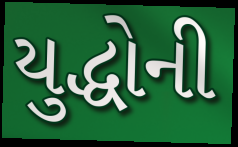
યુદ્ધોની